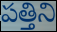
పత్తిని